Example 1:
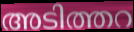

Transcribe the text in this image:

അടിത്തറ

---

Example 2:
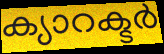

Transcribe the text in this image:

ക്യാറക്ടർ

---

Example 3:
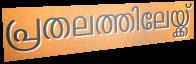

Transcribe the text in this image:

പ്രതലത്തിലേയ്ക്ക്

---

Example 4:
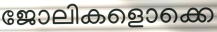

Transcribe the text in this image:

ജോലികളൊക്കെ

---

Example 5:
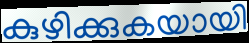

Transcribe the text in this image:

കുഴിക്കുകയായി